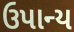
ઉપાન્ય